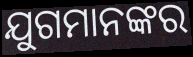
ଯୁଗମାନଙ୍କର